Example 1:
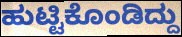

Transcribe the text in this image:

ಹುಟ್ಟಿಕೊಂಡಿದ್ದು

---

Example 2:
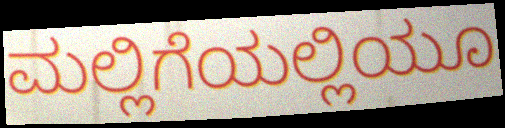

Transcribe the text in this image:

ಮಲ್ಲಿಗೆಯಲ್ಲಿಯೂ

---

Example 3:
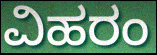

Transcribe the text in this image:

ವಿಹರಂ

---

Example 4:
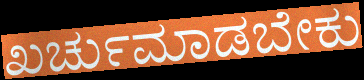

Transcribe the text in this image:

ಖರ್ಚುಮಾಡಬೇಕು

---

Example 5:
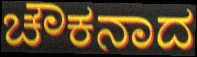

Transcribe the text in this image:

ಚೌಕನಾದ